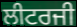
ਲੀਟਰਜੀ